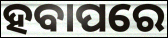
ହବାପରେ